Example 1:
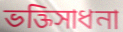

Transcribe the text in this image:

ভক্তিসাধনা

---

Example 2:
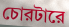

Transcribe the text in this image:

চোরটারে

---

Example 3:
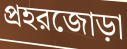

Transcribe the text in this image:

প্রহরজোড়া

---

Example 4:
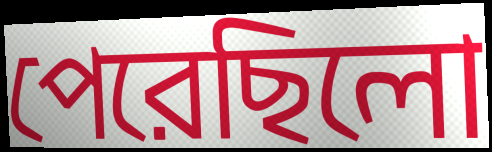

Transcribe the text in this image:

পেরেছিলো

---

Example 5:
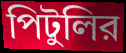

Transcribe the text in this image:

পিটুলির